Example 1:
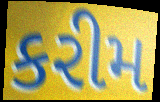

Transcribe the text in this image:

કરીમ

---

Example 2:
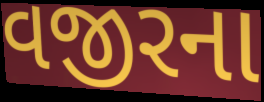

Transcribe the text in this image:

વજીરના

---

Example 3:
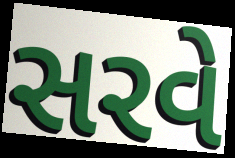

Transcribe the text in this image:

સરવે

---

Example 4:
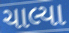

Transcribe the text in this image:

ચાલ્યા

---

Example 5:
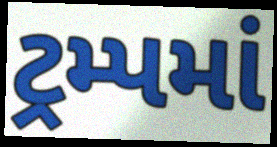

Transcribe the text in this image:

ટ્રમ્પમાં